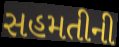
સહમતીની